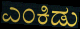
ಎಂಕಿಡು